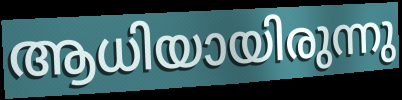
ആധിയായിരുന്നു